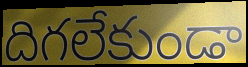
దిగలేకుండా